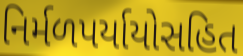
નિર્મળપર્યાયોસહિત